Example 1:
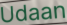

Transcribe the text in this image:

Udaan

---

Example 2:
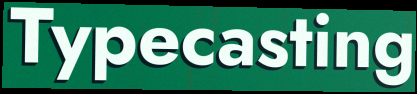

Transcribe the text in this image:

Typecasting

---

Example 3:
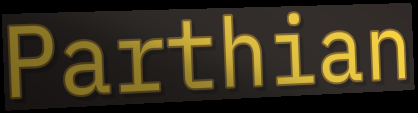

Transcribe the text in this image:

Parthian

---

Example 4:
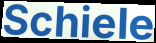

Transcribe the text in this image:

Schiele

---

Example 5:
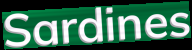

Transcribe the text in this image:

Sardines